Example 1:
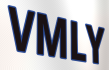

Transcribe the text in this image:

VMLY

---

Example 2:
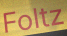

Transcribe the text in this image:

Foltz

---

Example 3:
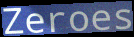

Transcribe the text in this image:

Zeroes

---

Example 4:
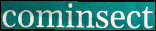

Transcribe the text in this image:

cominsect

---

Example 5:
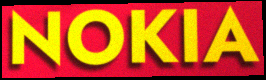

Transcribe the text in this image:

NOKIA